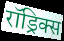
रॉड्रिक्स